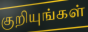
குறியுங்கள்